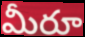
మీరూ